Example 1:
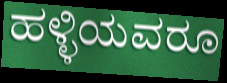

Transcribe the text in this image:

ಹಳ್ಳಿಯವರೂ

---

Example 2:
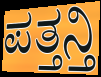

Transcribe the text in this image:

ಪತ್ತನ್ತಿ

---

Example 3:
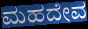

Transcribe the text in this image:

ಮಹದೇವ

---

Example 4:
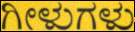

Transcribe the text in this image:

ಗೀಳುಗಳು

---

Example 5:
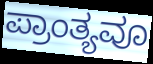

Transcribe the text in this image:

ಪ್ರಾಂತ್ಯವೂ